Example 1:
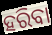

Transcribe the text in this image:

ହରିବା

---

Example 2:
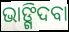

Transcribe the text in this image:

ଭାଙ୍ଗିଦବା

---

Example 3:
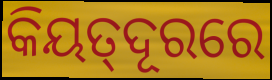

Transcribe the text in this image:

କିୟତ୍‌ଦୂରରେ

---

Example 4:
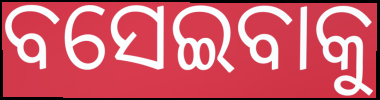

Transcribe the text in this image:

ବସେଇବାକୁ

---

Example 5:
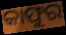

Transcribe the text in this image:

କାଫୁର